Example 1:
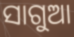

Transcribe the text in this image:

ସାଗୁଆ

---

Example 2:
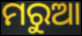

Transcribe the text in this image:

ମରୁଆ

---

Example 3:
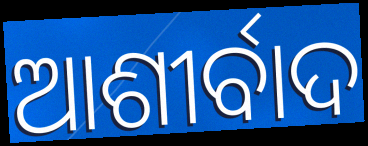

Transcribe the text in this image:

ଆଶୀର୍ବାଦ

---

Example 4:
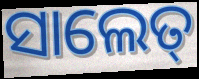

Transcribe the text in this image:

ସାଲେତ୍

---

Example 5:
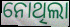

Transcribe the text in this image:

ନୋଥିଲା